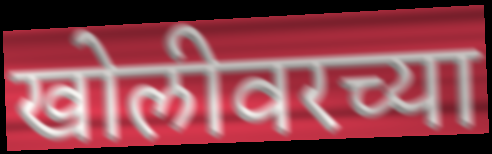
खोलीवरच्या